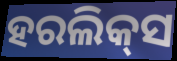
ହରଲିକ୍‌ସ